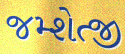
જમ્શેત્જી